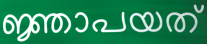
ജ്ഞാപയത്